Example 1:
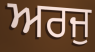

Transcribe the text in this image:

ਅਰਜੁ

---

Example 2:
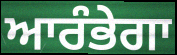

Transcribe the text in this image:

ਆਰੰਭੇਗਾ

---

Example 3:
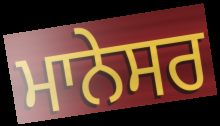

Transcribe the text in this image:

ਮਾਨੇਸਰ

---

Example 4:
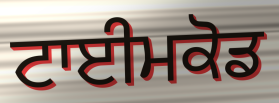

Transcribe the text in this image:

ਟਾਈਮਕੋਡ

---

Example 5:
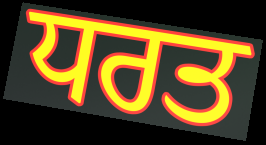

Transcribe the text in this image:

ਧਰਤ